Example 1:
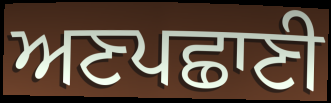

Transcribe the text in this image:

ਅਣਪਛਾਣੀ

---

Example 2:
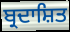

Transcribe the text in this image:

ਬ੍ਰਦਾਸ਼ਿਤ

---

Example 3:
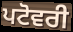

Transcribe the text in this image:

ਪਟੋਵਰੀ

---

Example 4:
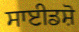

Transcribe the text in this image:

ਸਾਈਡਸ਼ੋ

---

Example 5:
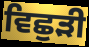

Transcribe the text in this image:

ਵਿਛੁੜੀ